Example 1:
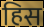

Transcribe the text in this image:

हिस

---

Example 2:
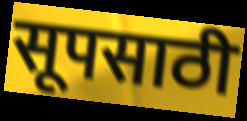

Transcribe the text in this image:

सूपसाठी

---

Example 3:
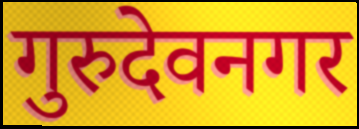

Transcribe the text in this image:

गुरुदेवनगर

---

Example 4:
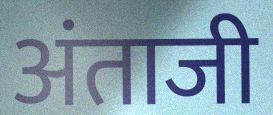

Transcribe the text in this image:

अंताजी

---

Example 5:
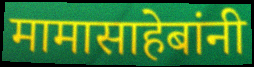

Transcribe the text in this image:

मामासाहेबांनी